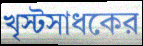
খৃস্টসাধকের